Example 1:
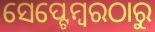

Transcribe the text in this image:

ସେପ୍ଟେମ୍ବରଠାରୁ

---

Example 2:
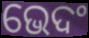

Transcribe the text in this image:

ଭେଦଂ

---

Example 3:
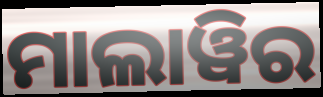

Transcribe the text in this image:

ମାଲାୱିର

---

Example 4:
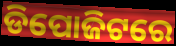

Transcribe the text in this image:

ଡିପୋଜିଟରେ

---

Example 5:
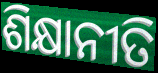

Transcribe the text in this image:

ଶିକ୍ଷାନୀତି